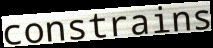
constrains